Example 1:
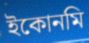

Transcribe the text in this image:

ইকোনমি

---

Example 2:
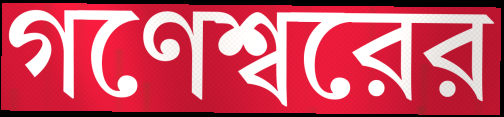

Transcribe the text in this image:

গণেশ্বরের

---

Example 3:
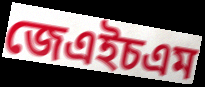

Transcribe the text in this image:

জেএইচএম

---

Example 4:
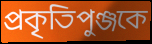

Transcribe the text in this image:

প্রকৃতিপুঞ্জকে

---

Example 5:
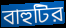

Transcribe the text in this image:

বাহুটির